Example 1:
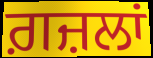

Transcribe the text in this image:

ਗ਼ਜ਼ਲਾਂ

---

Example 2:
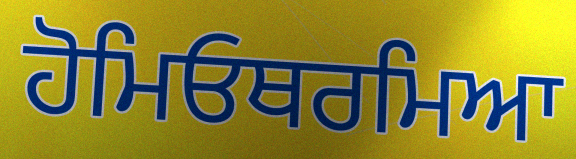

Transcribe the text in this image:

ਹੋਮਿਓਥਰਮਿਆ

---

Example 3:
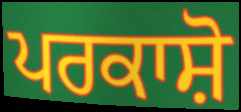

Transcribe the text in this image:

ਪਰਕਾਸ਼ੋ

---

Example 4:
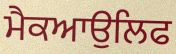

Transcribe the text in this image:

ਮੈਕਆਉਲਿਫ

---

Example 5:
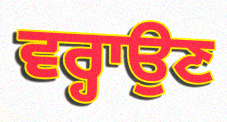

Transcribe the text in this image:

ਵਰ੍ਹਾਉਣ